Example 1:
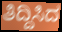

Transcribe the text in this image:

ತಿದ್ದಿಸಿದ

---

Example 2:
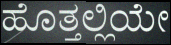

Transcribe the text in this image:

ಹೊತ್ತಲ್ಲಿಯೇ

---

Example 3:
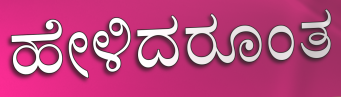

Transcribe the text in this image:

ಹೇಳಿದರೂಂತ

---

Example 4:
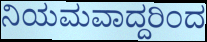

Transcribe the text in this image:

ನಿಯಮವಾದ್ದರಿಂದ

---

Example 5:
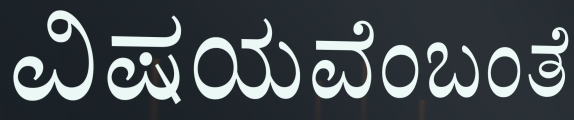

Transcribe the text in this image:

ವಿಷಯವೆಂಬಂತೆ